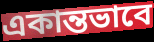
একান্তভাবে